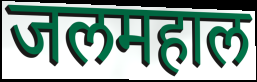
जलमहाल